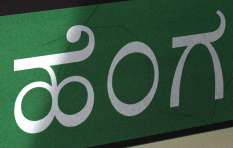
ಹೆಂಗ